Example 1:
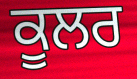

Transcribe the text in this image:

ਕੂਲਰ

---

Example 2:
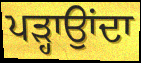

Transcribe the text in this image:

ਪੜ੍ਹਾਉਾਂਦਾ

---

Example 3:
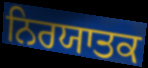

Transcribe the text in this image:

ਨਿਰਯਾਤਕ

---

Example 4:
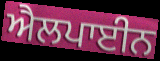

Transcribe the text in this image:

ਐਲਪਾਈਨ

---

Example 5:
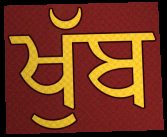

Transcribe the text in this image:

ਖੁੱਬ